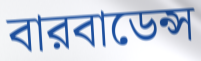
বারবাডেন্স